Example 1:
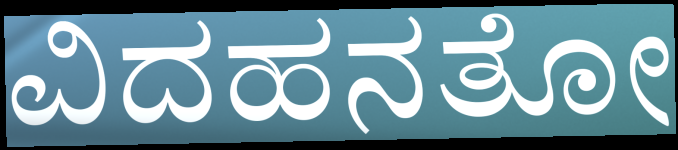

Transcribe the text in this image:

ವಿದಹನತೋ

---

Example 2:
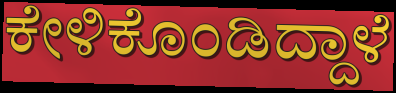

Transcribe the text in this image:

ಕೇಳಿಕೊಂಡಿದ್ದಾಳೆ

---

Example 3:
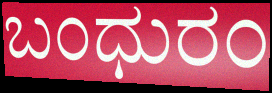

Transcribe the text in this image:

ಬಂಧುರಂ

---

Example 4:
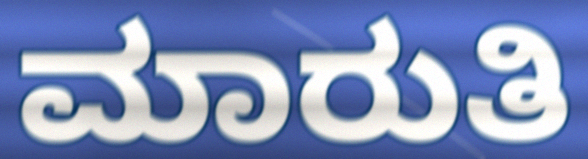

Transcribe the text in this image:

ಮಾರುತಿ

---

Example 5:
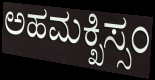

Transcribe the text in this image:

ಅಹಮಕ್ಖಿಸ್ಸಂ